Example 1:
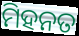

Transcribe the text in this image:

ମିହନତ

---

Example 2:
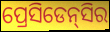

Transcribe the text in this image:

ପ୍ରେସିଡେନ୍‌ସିର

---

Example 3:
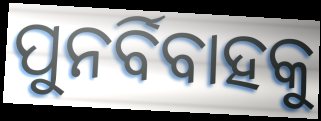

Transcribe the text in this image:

ପୁନର୍ବିବାହକୁ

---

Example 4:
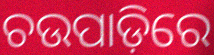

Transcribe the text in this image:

ଚଉପାଡ଼ିରେ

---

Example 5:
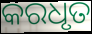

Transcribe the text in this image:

କରଧୃତ